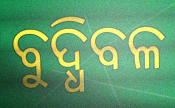
ବୁଦ୍ଧିବଳ